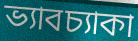
ভ্যাবচ্যাকা